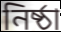
নিষ্ঠা